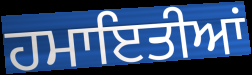
ਹਮਾਇਤੀਆਂ